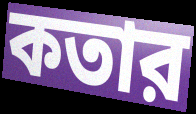
কতার